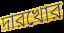
দারখোর